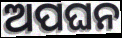
ଅପଘନ